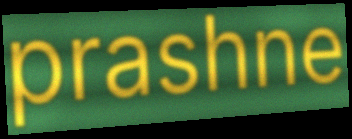
prashne